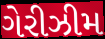
ગેરીઝીમ